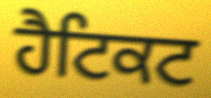
ਹੈਟਿਕਟ